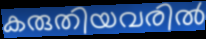
കരുതിയവരിൽ